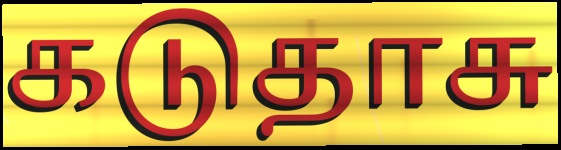
கடுதாசு